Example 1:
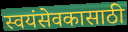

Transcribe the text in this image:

स्वयंसेवकासाठी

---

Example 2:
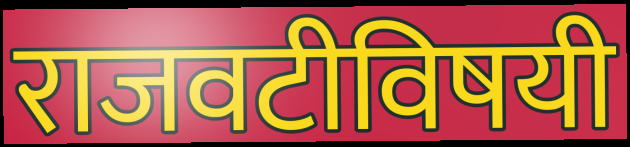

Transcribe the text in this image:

राजवटीविषयी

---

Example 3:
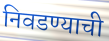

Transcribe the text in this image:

निवडण्याची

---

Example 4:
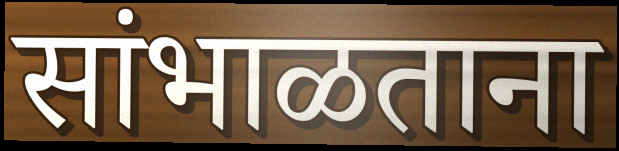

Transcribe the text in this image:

सांभाळताना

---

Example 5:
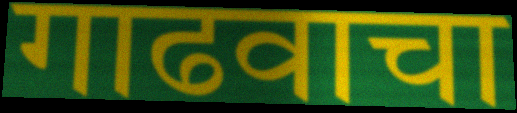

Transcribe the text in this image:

गाढवाचा